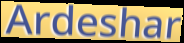
Ardeshar